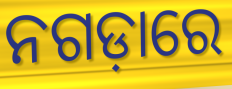
ନଗଡ଼ାରେ